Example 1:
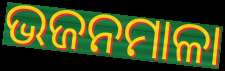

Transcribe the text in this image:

ଭଜନମାଳା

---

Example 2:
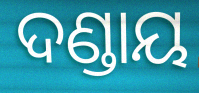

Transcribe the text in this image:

ଦଣ୍ଡାୟ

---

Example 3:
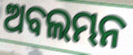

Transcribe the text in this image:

ଅବଲମ୍ଭନ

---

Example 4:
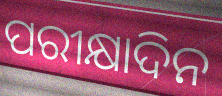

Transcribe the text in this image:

ପରୀକ୍ଷାଦିନ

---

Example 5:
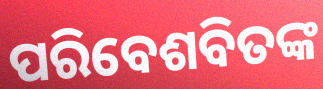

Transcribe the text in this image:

ପରିବେଶବିତଙ୍କ